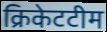
क्रिकेटटीम